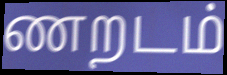
ணறடம்